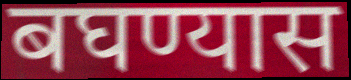
बघण्यास